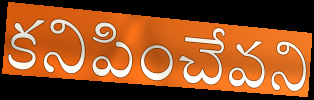
కనిపించేవని